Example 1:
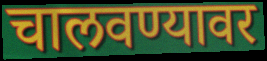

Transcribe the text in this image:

चालवण्यावर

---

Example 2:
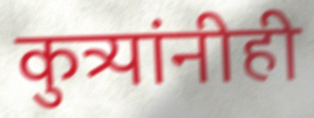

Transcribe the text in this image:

कुत्र्यांनीही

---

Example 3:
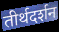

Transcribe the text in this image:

तीर्थदर्शन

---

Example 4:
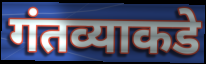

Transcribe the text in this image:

गंतव्याकडे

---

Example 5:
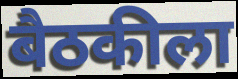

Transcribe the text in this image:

बैठकीला